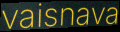
vaisnava